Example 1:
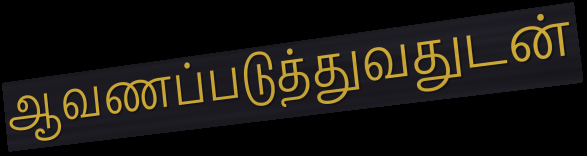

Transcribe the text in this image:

ஆவணப்படுத்துவதுடன்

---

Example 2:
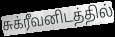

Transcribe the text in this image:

சுக்ரீவனிடத்தில்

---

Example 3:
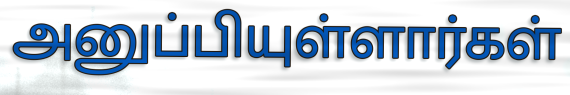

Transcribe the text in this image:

அனுப்பியுள்ளார்கள்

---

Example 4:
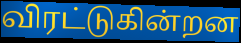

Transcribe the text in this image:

விரட்டுகின்றன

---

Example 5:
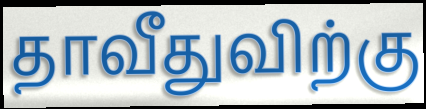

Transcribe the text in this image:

தாவீதுவிற்கு